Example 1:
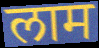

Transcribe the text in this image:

लाम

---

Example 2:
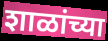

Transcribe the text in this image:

शाळांच्या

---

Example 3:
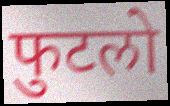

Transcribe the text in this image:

फुटलो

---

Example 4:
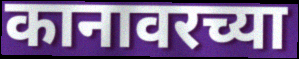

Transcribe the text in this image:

कानावरच्या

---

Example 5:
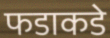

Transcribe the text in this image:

फडाकडे